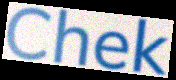
Chek